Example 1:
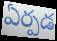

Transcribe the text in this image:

ఏర్పడ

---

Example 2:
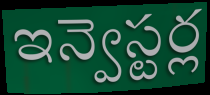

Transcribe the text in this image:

ఇన్వెస్టర్ల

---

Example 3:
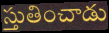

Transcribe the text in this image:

స్తుతించాడు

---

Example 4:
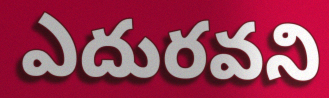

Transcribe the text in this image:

ఎదురవని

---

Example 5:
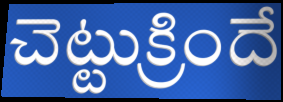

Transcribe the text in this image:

చెట్టుక్రిందే